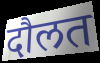
दौलत